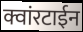
क्वांरटाईन